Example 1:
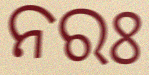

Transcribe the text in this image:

ନରଃ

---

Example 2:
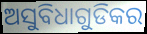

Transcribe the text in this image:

ଅସୁବିଧାଗୁଡିକର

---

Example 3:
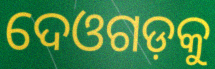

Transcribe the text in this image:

ଦେଓଗଡ଼କୁ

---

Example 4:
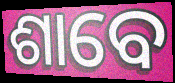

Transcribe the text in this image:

ଶାବେ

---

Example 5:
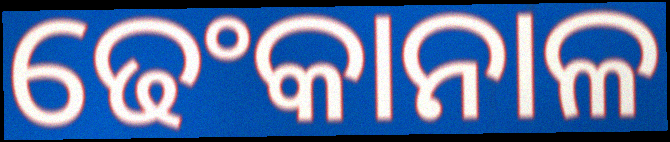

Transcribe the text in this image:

ଢେଂକାନାଳ